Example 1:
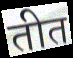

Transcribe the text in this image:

तीत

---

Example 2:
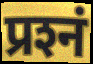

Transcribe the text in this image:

प्रश्‍नं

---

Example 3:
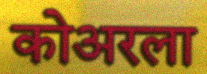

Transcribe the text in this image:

कोअरला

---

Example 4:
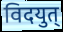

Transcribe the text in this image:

विदयुत्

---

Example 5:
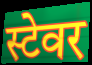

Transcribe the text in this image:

स्टेवर